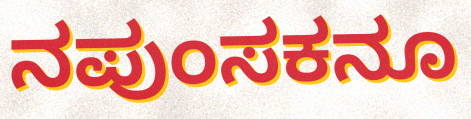
ನಪುಂಸಕನೂ